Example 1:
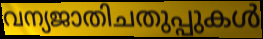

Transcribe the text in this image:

വന്യജാതിചതുപ്പുകൾ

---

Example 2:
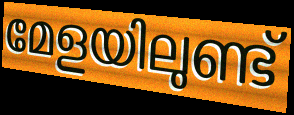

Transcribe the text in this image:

മേളയിലുണ്ട്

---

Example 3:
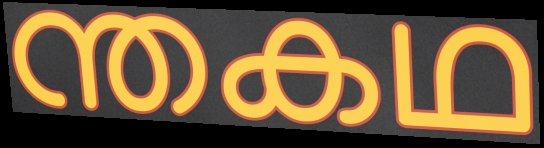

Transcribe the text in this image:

ന്തകഥ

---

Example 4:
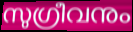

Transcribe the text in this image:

സുഗ്രീവനും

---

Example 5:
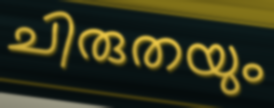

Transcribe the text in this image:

ചിരുതയും